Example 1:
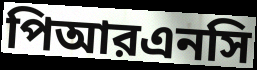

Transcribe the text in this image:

পিআরএনসি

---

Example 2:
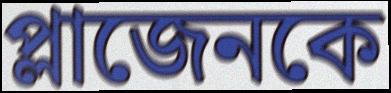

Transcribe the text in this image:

প্লাজেনকে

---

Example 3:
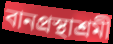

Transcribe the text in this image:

বানপ্রস্থাশ্রমী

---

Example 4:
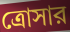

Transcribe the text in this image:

ত্রোসার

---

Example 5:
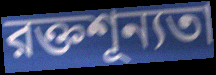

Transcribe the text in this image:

রক্তশূন্যতা